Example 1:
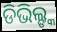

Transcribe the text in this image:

ଡିଭିଲ୍ଙ୍କ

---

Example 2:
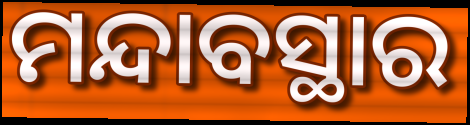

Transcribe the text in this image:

ମନ୍ଦାବସ୍ଥାର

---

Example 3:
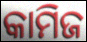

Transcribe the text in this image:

କାମିଜ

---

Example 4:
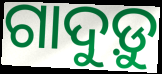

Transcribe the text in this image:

ଗାଦୁଡ଼ୁ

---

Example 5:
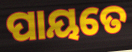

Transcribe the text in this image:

ପାୟତେ